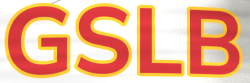
GSLB